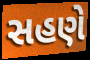
સહણે